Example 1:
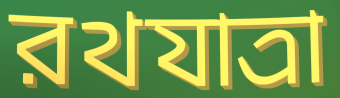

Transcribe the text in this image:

রথযাত্রা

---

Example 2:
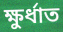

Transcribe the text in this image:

ক্ষুর্ধাত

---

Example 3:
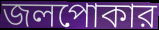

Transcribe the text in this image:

জলপোকার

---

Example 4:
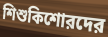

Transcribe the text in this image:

শিশুকিশোরদের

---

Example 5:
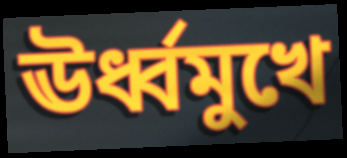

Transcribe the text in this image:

ঊর্ধ্বমুখে